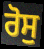
ਰੋਸੁ